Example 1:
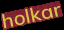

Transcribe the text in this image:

holkar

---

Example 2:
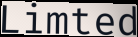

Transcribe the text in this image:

Limted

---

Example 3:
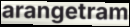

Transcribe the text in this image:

arangetram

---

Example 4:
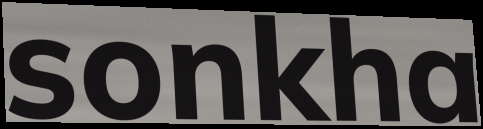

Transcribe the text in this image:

sonkha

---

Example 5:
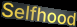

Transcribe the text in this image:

Selfhood